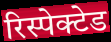
रिस्पेक्टेड